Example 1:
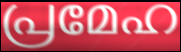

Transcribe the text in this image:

പ്രമേഹ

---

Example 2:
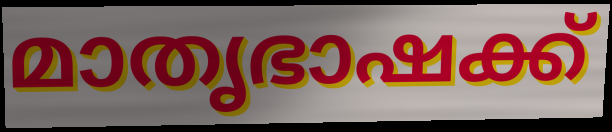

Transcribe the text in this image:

മാതൃഭാഷക്ക്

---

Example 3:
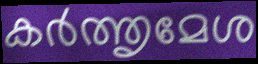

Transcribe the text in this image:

കർത്തൃമേശ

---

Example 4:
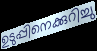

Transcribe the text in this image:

ഉടുപ്പിനെക്കുറിച്ചു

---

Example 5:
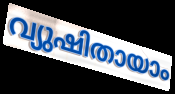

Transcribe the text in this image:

വ്യുഷിതായാം